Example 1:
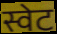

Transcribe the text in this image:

स्वेट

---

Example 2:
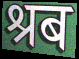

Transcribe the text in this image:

श्रब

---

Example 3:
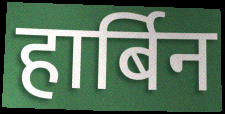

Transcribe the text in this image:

हार्बिन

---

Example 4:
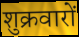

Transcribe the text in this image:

शुक्रवारों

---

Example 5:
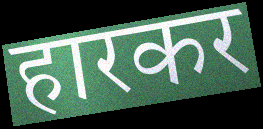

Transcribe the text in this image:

हारकर